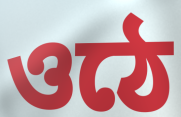
ওঠে